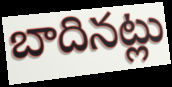
బాదినట్లు